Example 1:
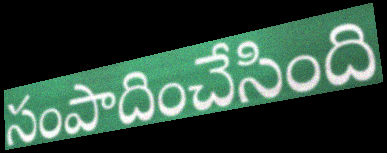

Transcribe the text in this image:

సంపాదించేసింది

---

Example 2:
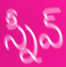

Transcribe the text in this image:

స్నీవ్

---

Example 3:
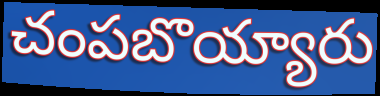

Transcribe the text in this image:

చంపబొయ్యారు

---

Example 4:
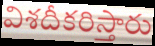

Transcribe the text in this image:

విశదీకరిస్తారు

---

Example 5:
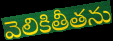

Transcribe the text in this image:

వెలికితీతను